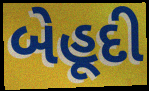
બેહૂદી